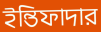
ইন্তিফাদার